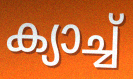
ക്യാച്ച്